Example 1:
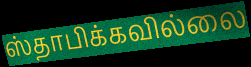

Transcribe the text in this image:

ஸ்தாபிக்கவில்லை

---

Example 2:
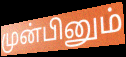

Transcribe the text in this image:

முன்பினும்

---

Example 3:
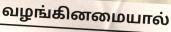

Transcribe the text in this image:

வழங்கினமையால்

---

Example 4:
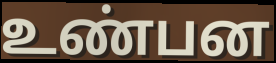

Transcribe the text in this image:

உண்பன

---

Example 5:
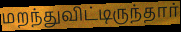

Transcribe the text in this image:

மறந்துவிட்டிருந்தார்